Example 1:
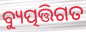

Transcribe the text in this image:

ବ୍ୟୁତ୍ପତ୍ତିଗତ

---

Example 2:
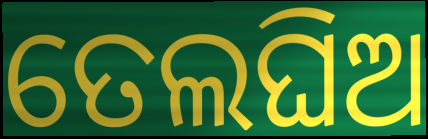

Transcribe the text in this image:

ତେଲଘିଅ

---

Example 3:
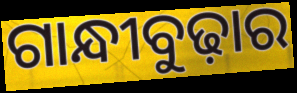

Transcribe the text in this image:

ଗାନ୍ଧୀବୁଢ଼ାର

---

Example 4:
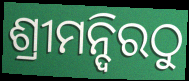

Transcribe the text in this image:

ଶ୍ରୀମନ୍ଦିରଠୁ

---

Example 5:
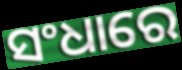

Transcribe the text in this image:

ସଂଧାରେ